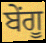
ਬੇਂਗੂ